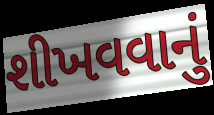
શીખવવાનું